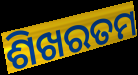
ଶିଖରତମ